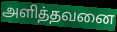
அளித்தவனை